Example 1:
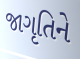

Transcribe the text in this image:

જાગૃતિને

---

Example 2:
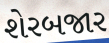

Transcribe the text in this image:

શેરબજાર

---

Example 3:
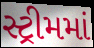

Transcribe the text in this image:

સ્ટ્રીમમાં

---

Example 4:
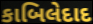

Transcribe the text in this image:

કાબિલેદાદ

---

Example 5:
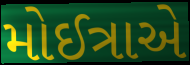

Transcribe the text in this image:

મોઈત્રાએ